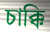
চাক্কি